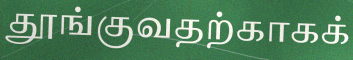
தூங்குவதற்காகக்